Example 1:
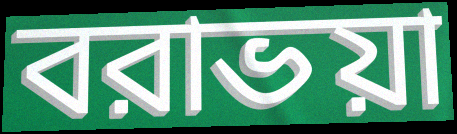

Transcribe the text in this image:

বরাভয়া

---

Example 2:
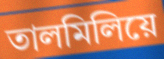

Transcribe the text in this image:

তালমিলিয়ে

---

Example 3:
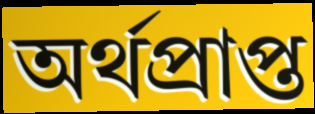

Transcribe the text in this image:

অর্থপ্রাপ্ত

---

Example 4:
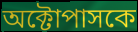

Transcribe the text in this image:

অক্টোপাসকে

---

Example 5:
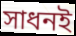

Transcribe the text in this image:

সাধনই